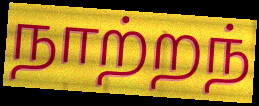
நாற்றந்